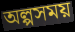
অল্পসময়